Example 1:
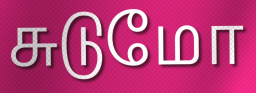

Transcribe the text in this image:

சுடுமோ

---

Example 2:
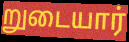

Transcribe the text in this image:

றுடையார்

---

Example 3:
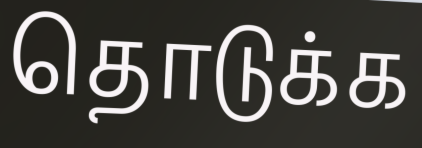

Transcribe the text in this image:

தொடுக்க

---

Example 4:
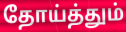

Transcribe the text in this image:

தோய்த்தும்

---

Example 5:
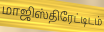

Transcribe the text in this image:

மாஜிஸ்திரேட்டிடம்